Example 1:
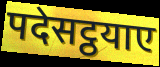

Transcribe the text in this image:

पदेसट्ठयाए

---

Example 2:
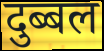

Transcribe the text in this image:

दुब्बल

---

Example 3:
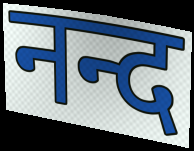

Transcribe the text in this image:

नन्द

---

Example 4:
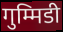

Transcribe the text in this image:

गुम्मिडी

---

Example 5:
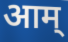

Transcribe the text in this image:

आम्